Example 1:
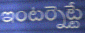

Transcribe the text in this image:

ఇంటర్నెట్టే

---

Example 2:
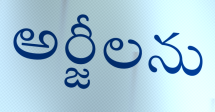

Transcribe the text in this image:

అర్జీలను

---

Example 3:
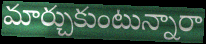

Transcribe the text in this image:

మార్చుకుంటున్నారా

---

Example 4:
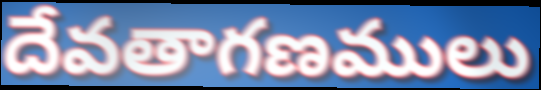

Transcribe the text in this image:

దేవతాగణములు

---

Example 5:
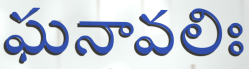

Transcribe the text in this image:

ఘనావలిః